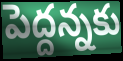
పెద్దన్నకు